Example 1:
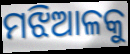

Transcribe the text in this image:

ମଝିଆଳକୁ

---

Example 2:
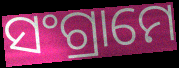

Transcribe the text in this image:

ସଂଗ୍ରାମେ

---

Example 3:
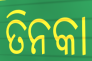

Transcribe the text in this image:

ତିନକା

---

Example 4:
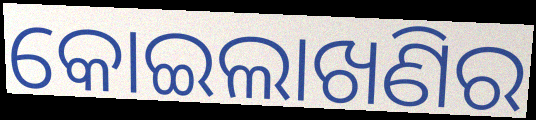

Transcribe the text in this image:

କୋଇଲାଖଣିର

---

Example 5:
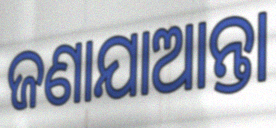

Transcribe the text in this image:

ଜଣାଯାଆନ୍ତା